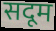
सदूम